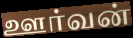
ஊர்வன்